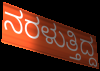
ನರಳುತ್ತಿದ್ದ